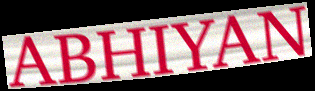
ABHIYAN